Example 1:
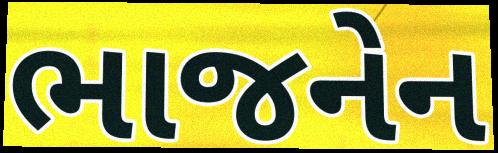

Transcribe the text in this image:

ભાજનેન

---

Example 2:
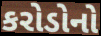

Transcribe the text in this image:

કરોડોનો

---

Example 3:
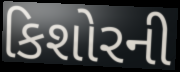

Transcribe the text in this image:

કિશોરની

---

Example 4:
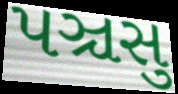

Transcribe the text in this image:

પઞ્ચસુ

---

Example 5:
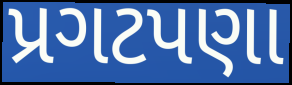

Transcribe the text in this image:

પ્રગટપણા